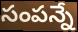
సంపన్నే